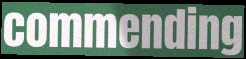
commending